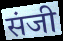
संजी